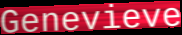
Genevieve